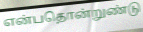
என்பதொன்றுண்டு